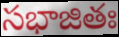
సభాజితః